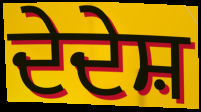
ਦੇਦੇਸ਼